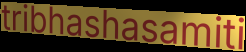
tribhashasamiti